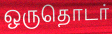
ஒருதொடர்